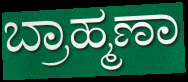
ಬ್ರಾಹ್ಮಣಾ